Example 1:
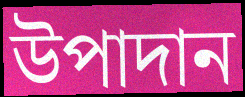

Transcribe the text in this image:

উপাদান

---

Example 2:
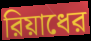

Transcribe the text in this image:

রিয়াধের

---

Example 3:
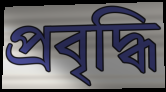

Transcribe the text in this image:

প্রবৃদ্ধি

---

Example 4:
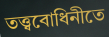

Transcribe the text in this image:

তত্ত্ববোধিনীতে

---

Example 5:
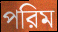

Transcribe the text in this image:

পরিম